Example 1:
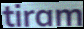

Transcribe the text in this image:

tiram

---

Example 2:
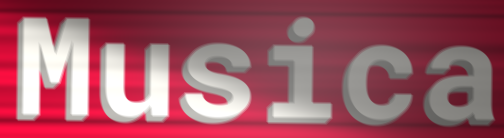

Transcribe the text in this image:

Musica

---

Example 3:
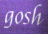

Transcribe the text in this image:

gosh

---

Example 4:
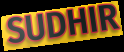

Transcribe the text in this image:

SUDHIR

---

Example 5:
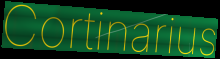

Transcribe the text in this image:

Cortinarius